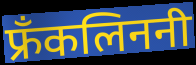
फ्रँकलिननी